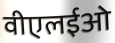
वीएलईओ